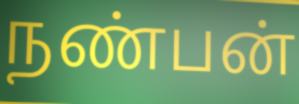
நண்பன்